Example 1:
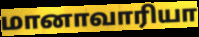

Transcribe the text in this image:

மானாவாரியா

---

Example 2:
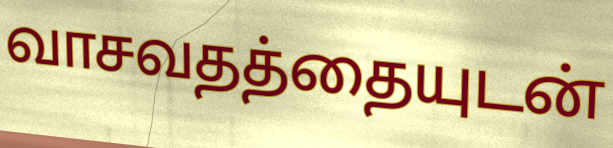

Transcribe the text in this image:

வாசவதத்தையுடன்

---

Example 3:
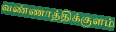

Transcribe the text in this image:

வண்ணாத்திக்குளம்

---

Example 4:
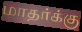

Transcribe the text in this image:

மாதர்க்கு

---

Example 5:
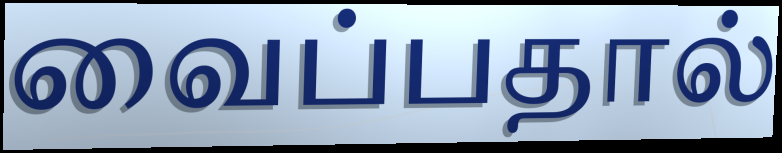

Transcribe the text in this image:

வைப்பதால்